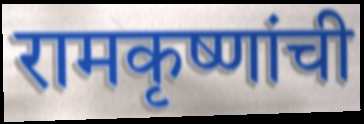
रामकृष्णांची